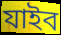
যাইব